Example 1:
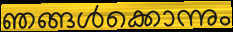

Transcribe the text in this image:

ഞങ്ങൾക്കൊന്നും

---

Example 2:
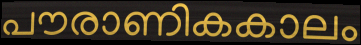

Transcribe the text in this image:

പൗരാണികകാലം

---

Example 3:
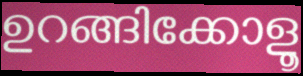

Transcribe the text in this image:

ഉറങ്ങിക്കോളൂ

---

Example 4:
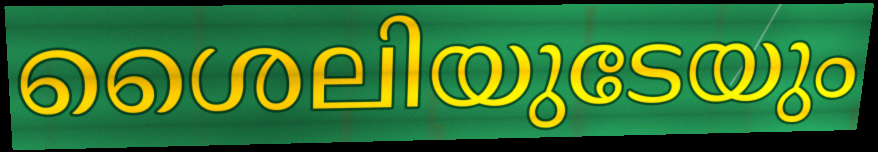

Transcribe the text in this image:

ശൈലിയുടേയും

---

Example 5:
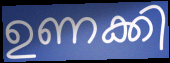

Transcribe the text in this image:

ഉണക്കി